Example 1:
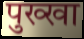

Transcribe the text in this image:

पुख्खा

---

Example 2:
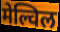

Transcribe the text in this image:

मेल्विल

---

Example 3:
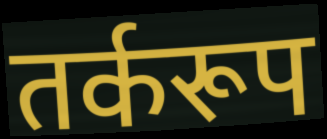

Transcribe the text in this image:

तर्करूप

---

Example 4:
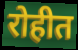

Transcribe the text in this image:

रोहीत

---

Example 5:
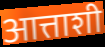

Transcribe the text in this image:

आत्ताशी